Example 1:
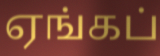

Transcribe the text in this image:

ஏங்கப்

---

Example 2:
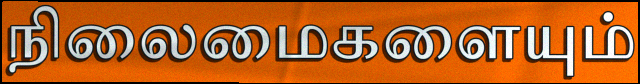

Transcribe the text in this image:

நிலைமைகளையும்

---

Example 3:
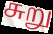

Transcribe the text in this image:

சுறு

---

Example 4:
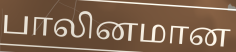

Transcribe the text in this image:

பாலினமான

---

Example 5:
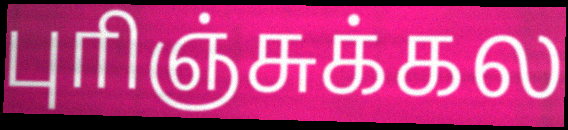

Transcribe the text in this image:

புரிஞ்சுக்கல